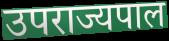
उपराज्यपाल